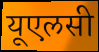
यूएलसी